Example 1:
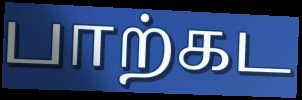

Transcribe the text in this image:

பாற்கட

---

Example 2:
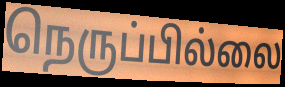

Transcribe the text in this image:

நெருப்பில்லை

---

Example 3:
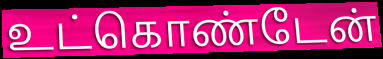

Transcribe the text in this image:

உட்கொண்டேன்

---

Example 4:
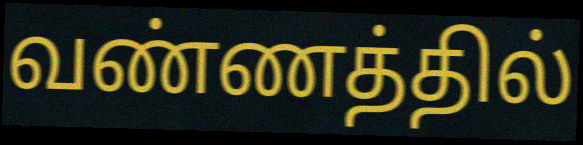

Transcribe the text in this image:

வண்ணத்தில்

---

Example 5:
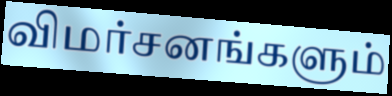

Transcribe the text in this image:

விமர்சனங்களும்